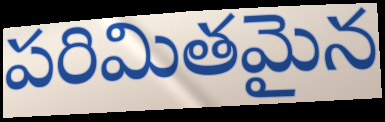
పరిమితమైన